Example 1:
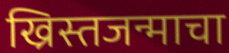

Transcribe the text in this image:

ख्रिस्तजन्माचा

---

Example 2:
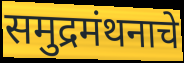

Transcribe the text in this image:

समुद्रमंथनाचे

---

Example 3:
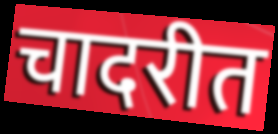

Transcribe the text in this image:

चादरीत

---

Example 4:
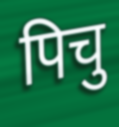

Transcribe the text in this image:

पिचु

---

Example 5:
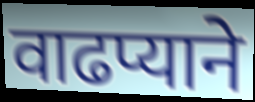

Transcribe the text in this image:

वाढप्याने